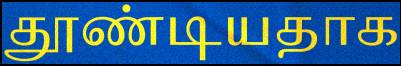
தூண்டியதாக